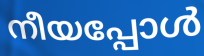
നീയപ്പോൾ